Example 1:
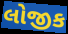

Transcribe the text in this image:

લોજીક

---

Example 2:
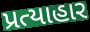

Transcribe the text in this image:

પ્રત્યાહાર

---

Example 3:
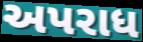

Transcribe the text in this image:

અપરાધ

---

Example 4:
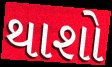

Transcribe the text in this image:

થાશો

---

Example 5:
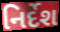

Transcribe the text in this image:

નિર્દેશ